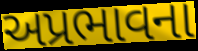
અપ્રભાવના